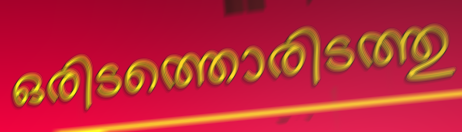
ഒരിടത്തൊരിടത്തു